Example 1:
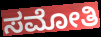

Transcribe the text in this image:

ಸಮೋತಿ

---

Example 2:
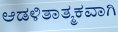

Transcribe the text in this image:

ಆಡಳಿತಾತ್ಮಕವಾಗಿ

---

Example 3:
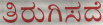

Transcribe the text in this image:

ತಿರುಗಿಸದೆ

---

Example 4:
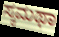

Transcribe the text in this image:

ಸ್ಕಮಥಾ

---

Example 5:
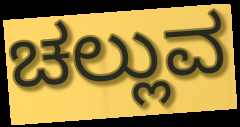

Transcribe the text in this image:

ಚಲ್ಲುವ